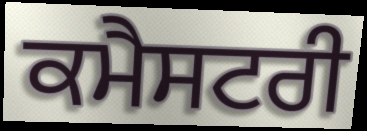
ਕਮੈਸਟਰੀ